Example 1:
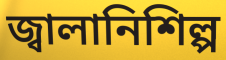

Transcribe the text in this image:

জ্বালানিশিল্প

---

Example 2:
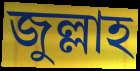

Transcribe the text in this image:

জুল্লাহ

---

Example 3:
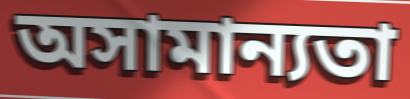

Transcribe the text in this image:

অসামান্যতা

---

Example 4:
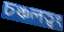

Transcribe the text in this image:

চঞ্চলত্বং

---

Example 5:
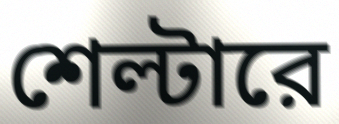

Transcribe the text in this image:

শেল্টারে